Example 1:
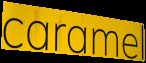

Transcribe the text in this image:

caramel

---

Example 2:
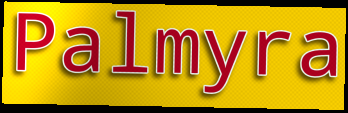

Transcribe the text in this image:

Palmyra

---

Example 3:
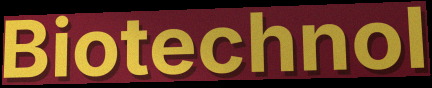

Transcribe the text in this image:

Biotechnol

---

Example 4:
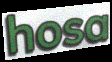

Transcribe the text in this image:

hosa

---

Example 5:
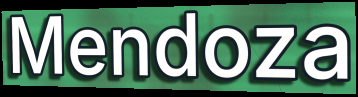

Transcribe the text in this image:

Mendoza